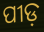
ପୀଡ଼